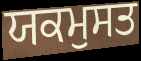
ਯਕਮੁਸਤ